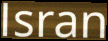
Isran